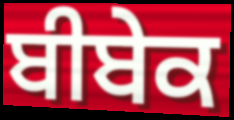
ਬੀਬੇਕ